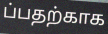
ப்பதற்காக